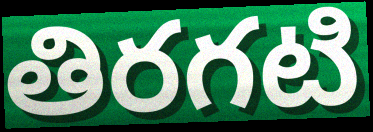
తిరగటి